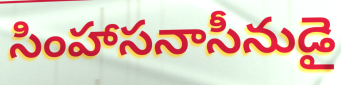
సింహాసనాసీనుడై